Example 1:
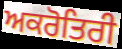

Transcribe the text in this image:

ਅਕਰੋਤਿਰੀ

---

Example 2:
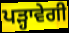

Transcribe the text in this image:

ਪੜ੍ਹਾਵੇਗੀ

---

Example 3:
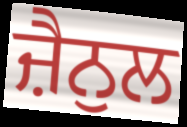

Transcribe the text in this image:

ਜ਼ੈਨੁਲ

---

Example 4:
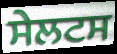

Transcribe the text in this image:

ਸੇਲਟਸ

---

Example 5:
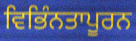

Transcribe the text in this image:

ਵਿਭਿੰਨਤਾਪੂਰਨ